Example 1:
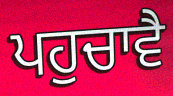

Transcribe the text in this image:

ਪਹੁਚਾਵੈ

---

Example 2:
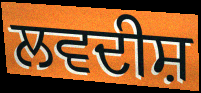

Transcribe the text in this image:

ਲਵਦੀਸ਼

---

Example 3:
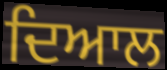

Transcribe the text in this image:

ਦਿਆਲ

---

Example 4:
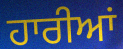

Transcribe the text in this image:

ਹਾਰੀਆਂ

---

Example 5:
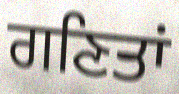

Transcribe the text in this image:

ਗਣਿਤਾਂ